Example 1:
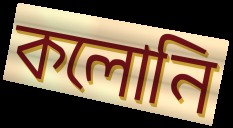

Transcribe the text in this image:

কলোনি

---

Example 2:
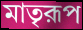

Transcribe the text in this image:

মাতৃরূপ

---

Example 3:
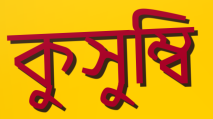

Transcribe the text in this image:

কুসুম্বি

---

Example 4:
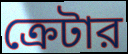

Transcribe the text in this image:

ক্রেটার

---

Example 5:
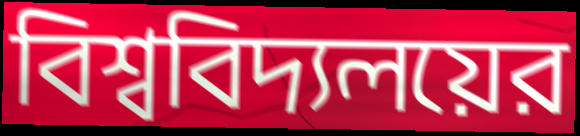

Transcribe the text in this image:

বিশ্ববিদ্যলয়ের